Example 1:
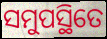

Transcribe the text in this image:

ସମୁପସ୍ଥିତେ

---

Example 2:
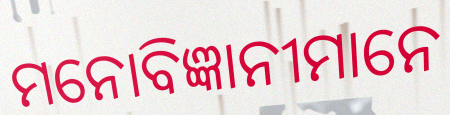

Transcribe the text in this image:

ମନୋବିଜ୍ଞାନୀମାନେ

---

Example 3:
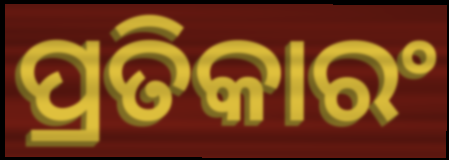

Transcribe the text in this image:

ପ୍ରତିକାରଂ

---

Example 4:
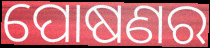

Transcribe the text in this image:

ପୋଷଣର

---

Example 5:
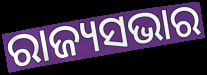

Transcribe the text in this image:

ରାଜ୍ୟସଭାର